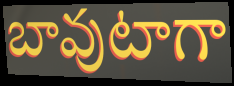
బావుటాగా